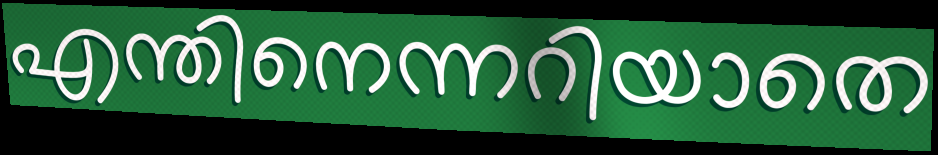
എന്തിനെന്നറിയാതെ